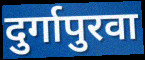
दुर्गापुरवा